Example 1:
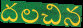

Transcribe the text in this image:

దలచిన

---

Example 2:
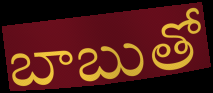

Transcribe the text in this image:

బాబుతో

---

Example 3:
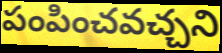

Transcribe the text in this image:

పంపించవచ్చని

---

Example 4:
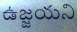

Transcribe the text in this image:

ఉజ్జయని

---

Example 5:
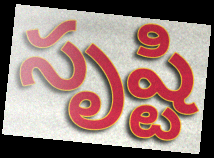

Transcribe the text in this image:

సృష్టి